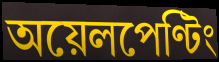
অয়েলপেণ্টিং